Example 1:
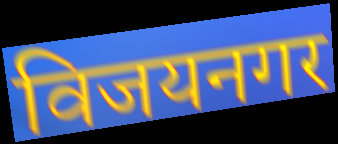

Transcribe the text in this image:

विजयनगर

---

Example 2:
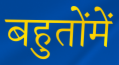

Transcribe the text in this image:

बहुतोंमें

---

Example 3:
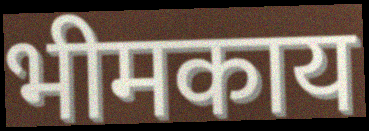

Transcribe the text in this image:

भीमकाय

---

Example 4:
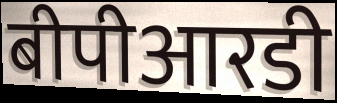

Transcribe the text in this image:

बीपीआरडी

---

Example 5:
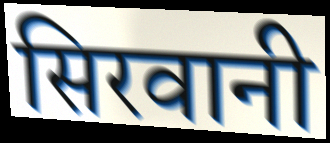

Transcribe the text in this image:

सिरवानी